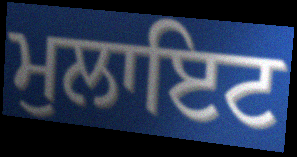
ਮੁਲਾਇਟ